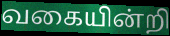
வகையின்றி